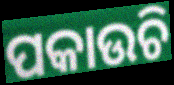
ପକାଉଚି